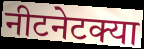
नीटनेटक्‍या